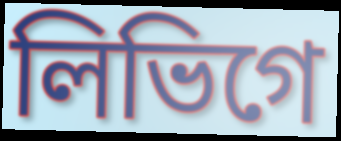
লিভিগে